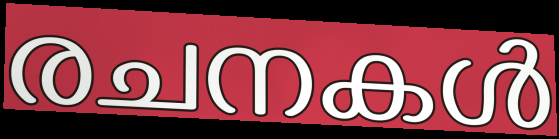
രചനകൾ